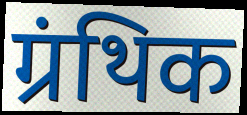
ग्रंथिक